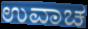
ಉವಾಚ